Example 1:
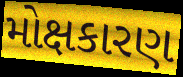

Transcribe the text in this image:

મોક્ષકારણ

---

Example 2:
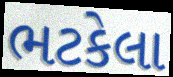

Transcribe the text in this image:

ભટકેલા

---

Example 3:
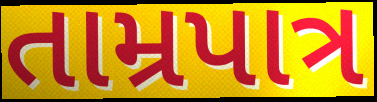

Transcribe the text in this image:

તામ્રપાત્ર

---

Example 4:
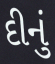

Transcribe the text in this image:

દીનું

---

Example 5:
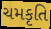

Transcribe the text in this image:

ચમકૃતિ